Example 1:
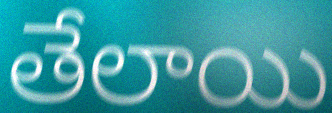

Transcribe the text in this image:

తేలాయి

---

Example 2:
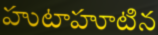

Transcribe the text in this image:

హుటాహూటిన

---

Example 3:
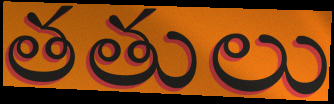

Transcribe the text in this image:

తతులు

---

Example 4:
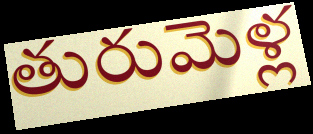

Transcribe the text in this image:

తురుమెళ్ల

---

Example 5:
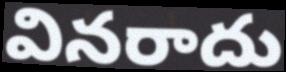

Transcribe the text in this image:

వినరాదు